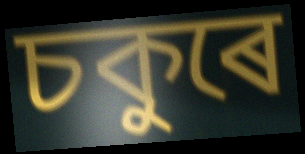
চকুৰে